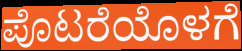
ಪೊಟರೆಯೊಳಗೆ